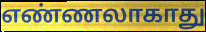
எண்ணலாகாது